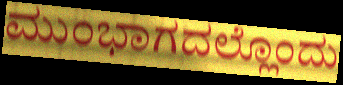
ಮುಂಭಾಗದಲ್ಲೊಂದು